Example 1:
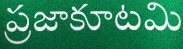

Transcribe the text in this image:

ప్రజాకూటమి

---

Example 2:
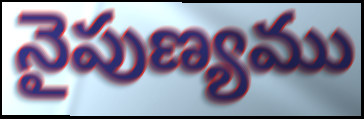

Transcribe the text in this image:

నైపుణ్యము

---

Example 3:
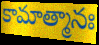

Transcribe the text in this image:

కామాత్మానః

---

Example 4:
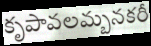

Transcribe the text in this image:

కృపావలమ్బనకరీ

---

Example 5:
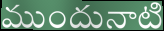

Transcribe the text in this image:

ముందునాటి